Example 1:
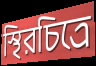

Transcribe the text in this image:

স্থিরচিত্রে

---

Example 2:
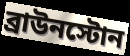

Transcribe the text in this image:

ব্রাউনস্টোন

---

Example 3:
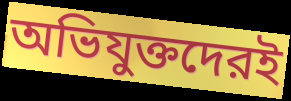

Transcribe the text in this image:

অভিযুক্তদেরই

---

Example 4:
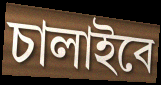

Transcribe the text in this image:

চালাইবে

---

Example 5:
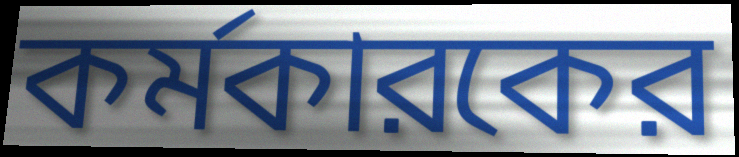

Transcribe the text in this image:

কর্মকারকের